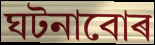
ঘটনাবোৰ